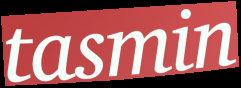
tasmin